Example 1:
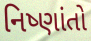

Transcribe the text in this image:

નિષ્ણાંતો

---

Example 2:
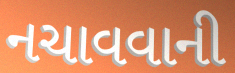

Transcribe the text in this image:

નચાવવાની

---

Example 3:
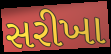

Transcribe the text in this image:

સરીખા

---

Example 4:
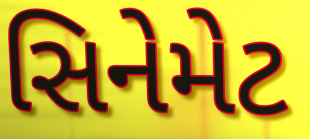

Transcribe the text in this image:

સિનેમેટ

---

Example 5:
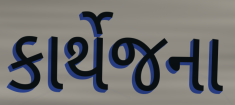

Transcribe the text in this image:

કાર્થેજના